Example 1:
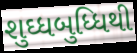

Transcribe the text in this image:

શુઘ્ધબુધ્ધિથી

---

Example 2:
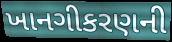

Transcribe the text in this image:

ખાનગીકરણની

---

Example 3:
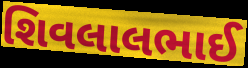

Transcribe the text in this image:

શિવલાલભાઈ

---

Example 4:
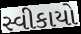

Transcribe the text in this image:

સ્વીકાયો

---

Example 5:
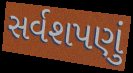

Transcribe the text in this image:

સર્વશપણું